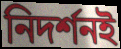
নিদর্শনই